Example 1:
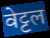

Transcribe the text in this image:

वेट्टल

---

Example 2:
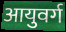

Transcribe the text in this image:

आयुवर्ग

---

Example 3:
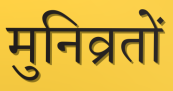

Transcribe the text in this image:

मुनिव्रतों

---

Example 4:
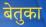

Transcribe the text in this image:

बेतुका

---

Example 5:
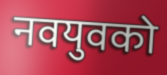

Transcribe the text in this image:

नवयुवको